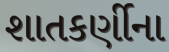
શાતકર્ણીના